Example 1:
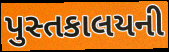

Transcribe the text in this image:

પુસ્તકાલયની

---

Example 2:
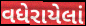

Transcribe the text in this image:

વધેરાયેલાં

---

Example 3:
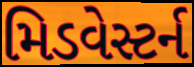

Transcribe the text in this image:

મિડવેસ્ટર્ન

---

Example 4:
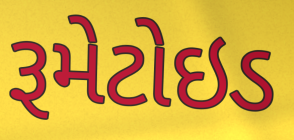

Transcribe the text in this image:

રૂમેટોઇડ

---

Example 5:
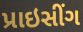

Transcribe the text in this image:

પ્રાઇસીંગ